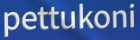
pettukoni